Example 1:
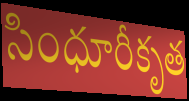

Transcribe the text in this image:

సింధూరీకృత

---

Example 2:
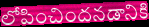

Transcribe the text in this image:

లోపించిందనడానికి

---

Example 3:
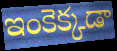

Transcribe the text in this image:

ఇంకెక్కడా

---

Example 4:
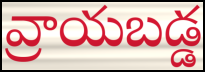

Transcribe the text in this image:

వ్రాయబడ్డ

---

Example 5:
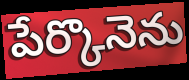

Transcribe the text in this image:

పేర్కొనెను